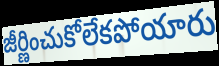
జీర్ణించుకోలేకపోయారు